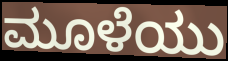
ಮೂಳೆಯು